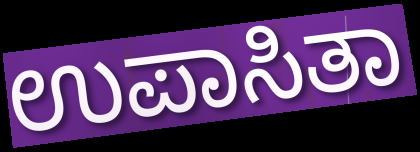
ಉಪಾಸಿತಾ